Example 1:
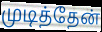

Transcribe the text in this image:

முடித்தேன்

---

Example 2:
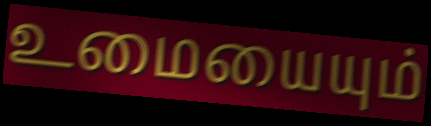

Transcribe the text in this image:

உமையையும்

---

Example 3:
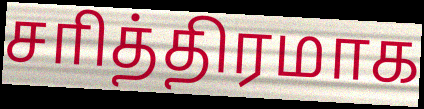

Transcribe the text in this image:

சரித்திரமாக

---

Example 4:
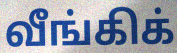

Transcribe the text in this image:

வீங்கிக்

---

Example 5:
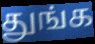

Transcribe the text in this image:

துங்க